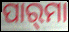
ପାର୍‌ମା